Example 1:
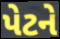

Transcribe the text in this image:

પેટને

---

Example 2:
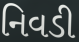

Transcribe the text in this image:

નિવડી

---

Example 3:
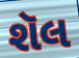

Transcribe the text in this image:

શૅલ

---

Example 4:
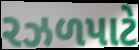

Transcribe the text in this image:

રઝળપાટે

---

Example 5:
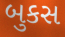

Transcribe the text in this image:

બુકસ